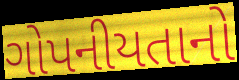
ગોપનીયતાનો